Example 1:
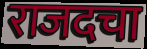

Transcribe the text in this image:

राजदचा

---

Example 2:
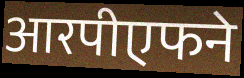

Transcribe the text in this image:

आरपीएफने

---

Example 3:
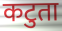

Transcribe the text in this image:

कटुता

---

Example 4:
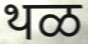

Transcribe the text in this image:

थळ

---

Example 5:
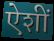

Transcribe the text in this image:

ऐशीं